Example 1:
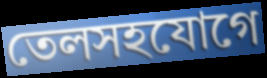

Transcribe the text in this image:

তেলসহযোগে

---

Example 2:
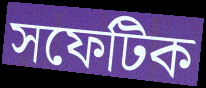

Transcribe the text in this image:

সফেটিক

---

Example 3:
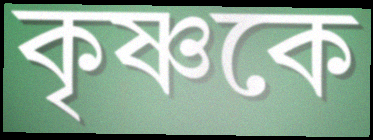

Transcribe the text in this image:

কৃষ্ণকে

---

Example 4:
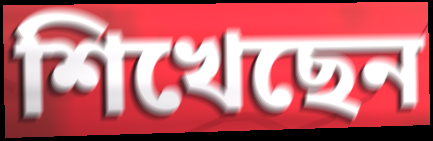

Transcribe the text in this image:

শিখেছেন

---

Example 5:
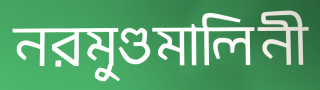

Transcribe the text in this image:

নরমুণ্ডমালিনী